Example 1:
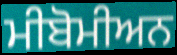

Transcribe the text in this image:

ਮੀਬੋਮੀਅਨ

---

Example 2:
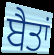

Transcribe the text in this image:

ਬੈਤਾਂ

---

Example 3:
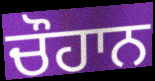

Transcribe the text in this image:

ਚੌਹਾਨ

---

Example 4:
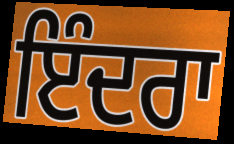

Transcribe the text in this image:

ਇੰਦਰਾ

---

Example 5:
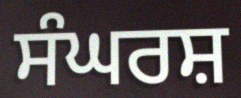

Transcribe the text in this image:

ਸੰਘਰਸ਼